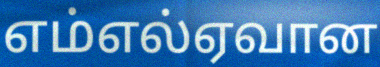
எம்எல்ஏவான